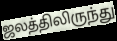
ஜலத்திலிருந்து